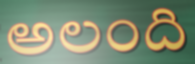
అలంది